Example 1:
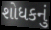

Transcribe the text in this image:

શોધકનું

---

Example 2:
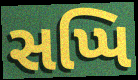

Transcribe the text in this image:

સપ્પિ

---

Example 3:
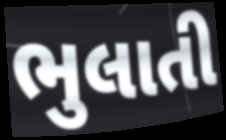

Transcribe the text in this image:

ભુલાતી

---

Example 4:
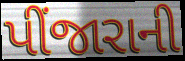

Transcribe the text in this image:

પીંજારાની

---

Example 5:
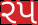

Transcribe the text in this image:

રપ